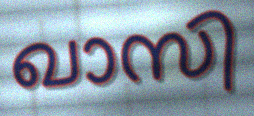
ഖാസി